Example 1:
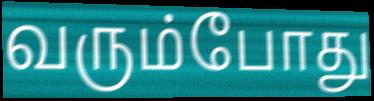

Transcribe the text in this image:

வரும்போது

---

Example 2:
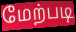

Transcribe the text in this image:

மேற்படி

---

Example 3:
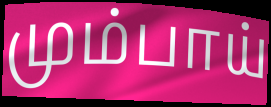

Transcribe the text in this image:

மும்பாய்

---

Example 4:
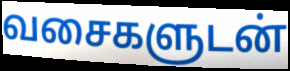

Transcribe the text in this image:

வசைகளுடன்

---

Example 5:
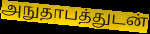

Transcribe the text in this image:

அநுதாபத்துடன்